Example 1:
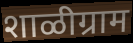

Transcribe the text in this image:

शाळीग्राम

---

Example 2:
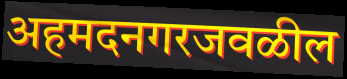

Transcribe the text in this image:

अहमदनगरजवळील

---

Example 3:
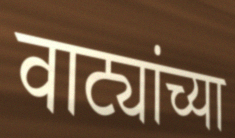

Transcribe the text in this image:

वाट्यांच्या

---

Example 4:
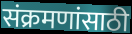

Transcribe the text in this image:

संक्रमणांसाठी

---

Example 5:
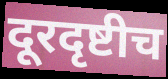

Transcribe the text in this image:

दूरदृष्टीच